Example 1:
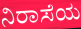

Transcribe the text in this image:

ನಿರಾಸೆಯ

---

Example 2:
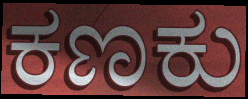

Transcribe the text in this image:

ಕಣಕು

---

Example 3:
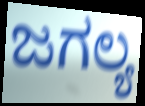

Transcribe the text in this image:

ಜಗಲ್ಯ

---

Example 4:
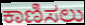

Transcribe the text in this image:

ಕಾಣಿಸಲು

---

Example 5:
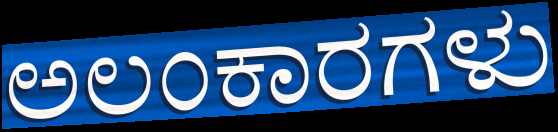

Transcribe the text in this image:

ಅಲಂಕಾರಗಳು